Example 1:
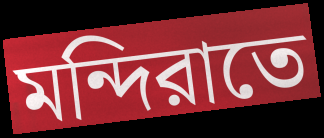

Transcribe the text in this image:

মন্দিরাতে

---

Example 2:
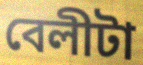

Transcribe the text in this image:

বেলীটা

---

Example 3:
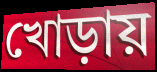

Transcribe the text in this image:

খোড়ায়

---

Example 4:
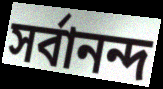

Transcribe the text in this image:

সর্বানন্দ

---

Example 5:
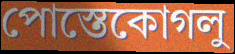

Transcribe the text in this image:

পোস্তেকোগলু